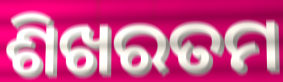
ଶିଖରତମ